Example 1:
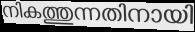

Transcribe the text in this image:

നികത്തുന്നതിനായി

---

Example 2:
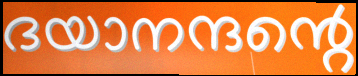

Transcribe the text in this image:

ദയാനന്ദന്റെ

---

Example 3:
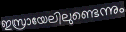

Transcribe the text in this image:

ഇസ്രായേലിലുണ്ടെന്നും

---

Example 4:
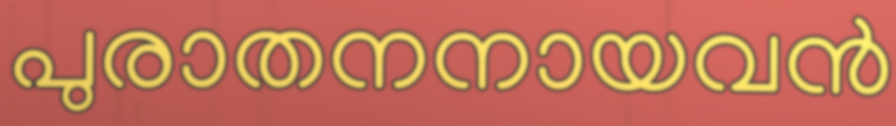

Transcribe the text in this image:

പുരാതനനായവൻ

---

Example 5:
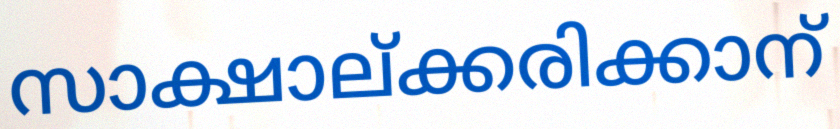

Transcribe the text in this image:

സാക്ഷാല്ക്കരിക്കാന്